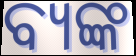
ବ୍ୟଙ୍କ